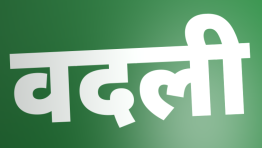
वदली